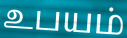
உபயம்